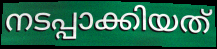
നടപ്പാക്കിയത്